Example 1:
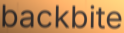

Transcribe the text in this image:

backbite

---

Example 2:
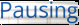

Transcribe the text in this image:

Pausing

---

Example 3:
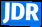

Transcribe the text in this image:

JDR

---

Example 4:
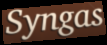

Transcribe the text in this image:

Syngas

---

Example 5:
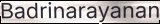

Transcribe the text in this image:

Badrinarayanan